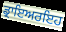
ਡ੍ਰਾਇਅਰਇਹ